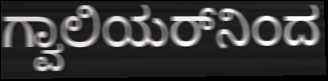
ಗ್ವಾಲಿಯರ್‌ನಿಂದ